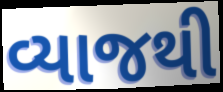
વ્યાજથી